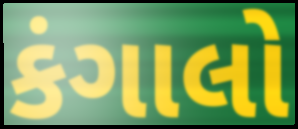
કંગાલો